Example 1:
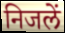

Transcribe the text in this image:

निजलें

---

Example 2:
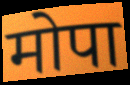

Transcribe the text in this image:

मोपा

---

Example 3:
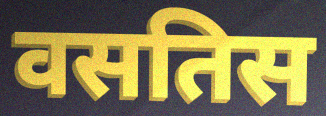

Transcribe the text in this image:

वसतिस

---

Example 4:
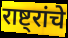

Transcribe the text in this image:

राष्ट्रांचे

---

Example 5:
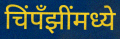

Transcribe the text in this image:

चिंपँझींमध्ये